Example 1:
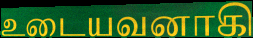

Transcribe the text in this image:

உடையவனாகி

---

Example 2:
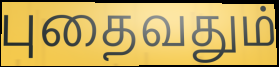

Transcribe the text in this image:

புதைவதும்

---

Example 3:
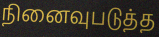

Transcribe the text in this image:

நினைவுபடுத்த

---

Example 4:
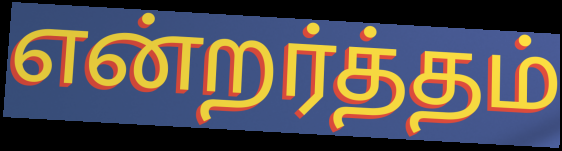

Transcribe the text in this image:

என்றர்த்தம்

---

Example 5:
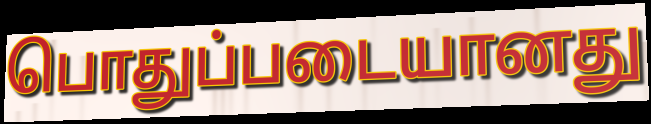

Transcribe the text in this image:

பொதுப்படையானது